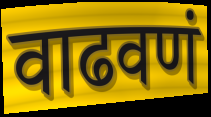
वाढवणं